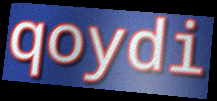
qoydi